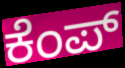
ಕೆಂಪ್